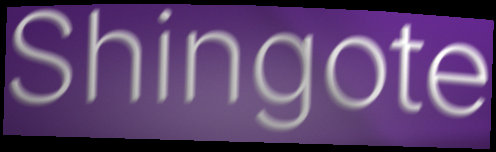
Shingote